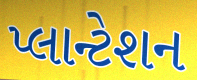
પ્લાન્ટેશન